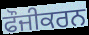
ਫੌਜੀਕਰਨ